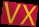
VX